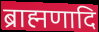
ब्राह्मणादि